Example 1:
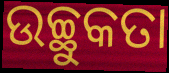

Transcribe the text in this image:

ଉଚ୍ଛୁକତା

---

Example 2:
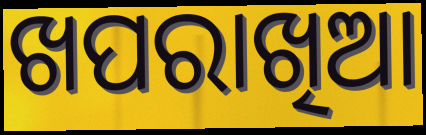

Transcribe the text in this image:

ଖପରାଖିଆ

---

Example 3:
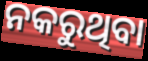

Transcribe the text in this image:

ନକରୁଥିବା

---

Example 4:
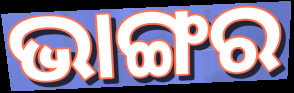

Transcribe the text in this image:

ଭାଙ୍ଗର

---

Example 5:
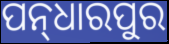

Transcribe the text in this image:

ପନ୍‌ଧାରପୁର